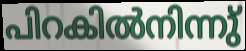
പിറകിൽനിന്നു്